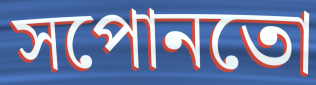
সপোনতো